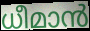
ധീമാൻ